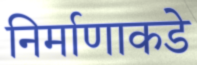
निर्माणाकडे